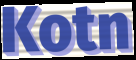
Kotn